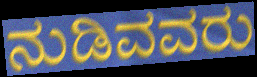
ನುಡಿವವರು